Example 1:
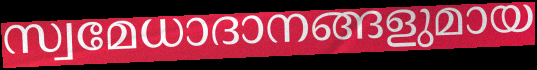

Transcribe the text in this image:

സ്വമേധാദാനങ്ങളുമായ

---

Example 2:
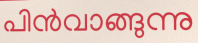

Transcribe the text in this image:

പിൻവാങ്ങുന്നു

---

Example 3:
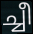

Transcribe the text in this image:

ച്ചീ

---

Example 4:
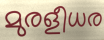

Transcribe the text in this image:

മുരളീധര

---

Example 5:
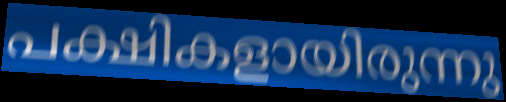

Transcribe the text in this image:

പക്ഷികളായിരുന്നു